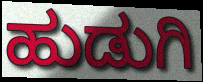
ಹುಡುಗಿ